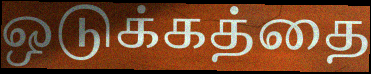
ஒடுக்கத்தை